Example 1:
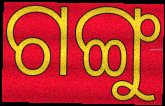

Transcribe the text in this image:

ଗଙ୍ଗୁ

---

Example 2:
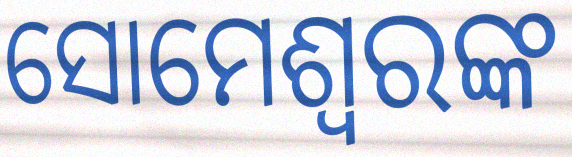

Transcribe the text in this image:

ସୋମେଶ୍ୱରଙ୍କ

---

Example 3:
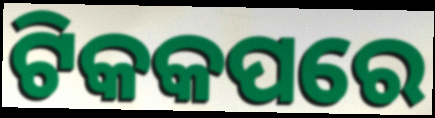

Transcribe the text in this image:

ଟିକକପରେ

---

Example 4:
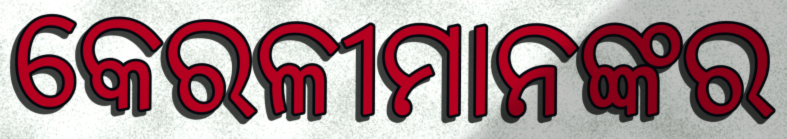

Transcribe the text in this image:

କେରଳୀମାନଙ୍କର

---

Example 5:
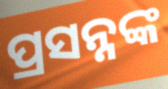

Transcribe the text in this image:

ପ୍ରସନ୍ନଙ୍କ